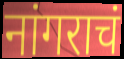
नांगराचं